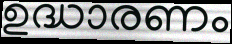
ഉദ്ധാരണം